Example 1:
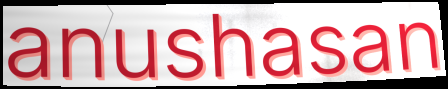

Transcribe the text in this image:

anushasan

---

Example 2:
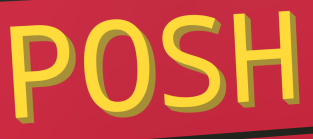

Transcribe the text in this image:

POSH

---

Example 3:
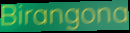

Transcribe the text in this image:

Birangona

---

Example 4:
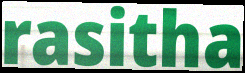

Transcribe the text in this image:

rasitha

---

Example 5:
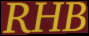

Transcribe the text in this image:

RHB